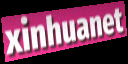
xinhuanet